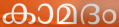
കാമദം